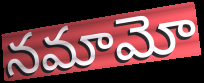
నమామో